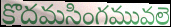
కొదమసింగమువలె